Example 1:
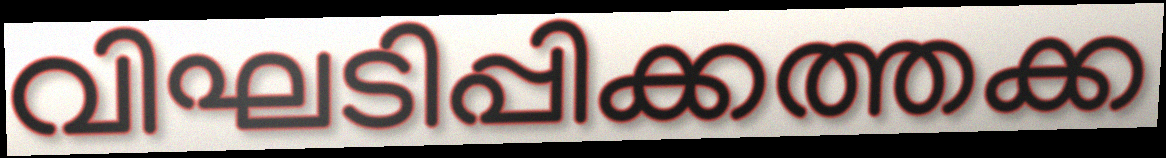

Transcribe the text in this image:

വിഘടിപ്പിക്കത്തക്ക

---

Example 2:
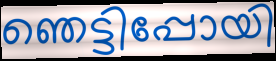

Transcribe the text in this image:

ഞെട്ടിപ്പോയി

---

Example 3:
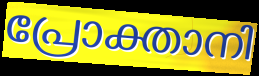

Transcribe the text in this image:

പ്രോക്താനി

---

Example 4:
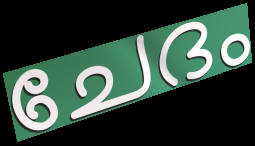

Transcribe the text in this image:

ചേദം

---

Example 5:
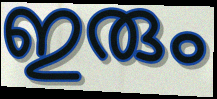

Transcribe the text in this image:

ഇരും